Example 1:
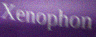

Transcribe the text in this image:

Xenophon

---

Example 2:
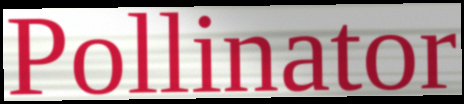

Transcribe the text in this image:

Pollinator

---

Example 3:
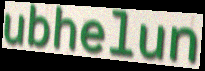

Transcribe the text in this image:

ubhelun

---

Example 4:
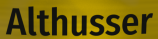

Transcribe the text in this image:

Althusser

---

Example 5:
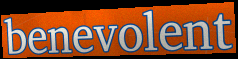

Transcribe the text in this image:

benevolent